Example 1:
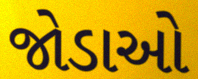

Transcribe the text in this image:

જોડાઓ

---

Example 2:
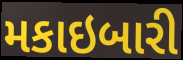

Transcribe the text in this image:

મકાઇબારી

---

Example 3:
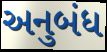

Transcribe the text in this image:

અનુબંધ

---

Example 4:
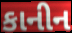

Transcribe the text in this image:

કાનીન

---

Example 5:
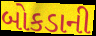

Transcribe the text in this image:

બોકડાની